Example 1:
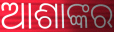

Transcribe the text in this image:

ଆଶାଙ୍କର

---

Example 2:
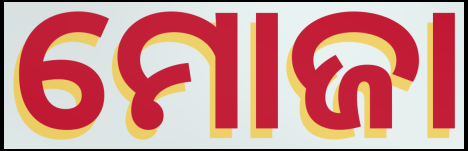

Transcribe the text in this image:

ମୋଜା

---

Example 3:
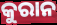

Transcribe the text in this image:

କୁରାନ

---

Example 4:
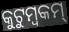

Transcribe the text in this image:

କୁଟୁମ୍ବକମ୍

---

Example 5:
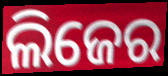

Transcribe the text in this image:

ଲିଜେର